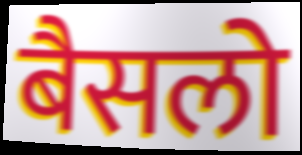
बैसलो